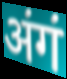
अंगं